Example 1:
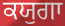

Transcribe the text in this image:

ਕਯੁਗਾ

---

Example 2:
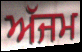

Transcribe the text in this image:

ਅੱਜਮ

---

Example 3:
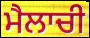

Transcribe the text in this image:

ਮੈਲਾਚੀ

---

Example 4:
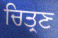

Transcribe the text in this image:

ਚਿਤ੍ਰਣ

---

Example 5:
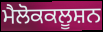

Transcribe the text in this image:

ਮੈਲੋਕਕਲੂਸ਼ਨ